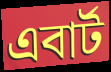
এবার্ট